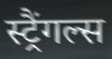
स्ट्रैंगल्स